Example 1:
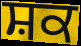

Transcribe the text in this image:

ਸ਼ਕ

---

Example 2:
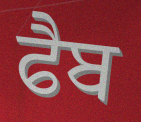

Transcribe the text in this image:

ਫੈਬ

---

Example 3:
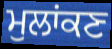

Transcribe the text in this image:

ਮੁਲਾਂਕਣ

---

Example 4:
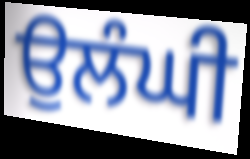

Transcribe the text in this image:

ਉਲੰਘੀ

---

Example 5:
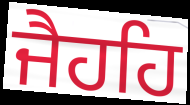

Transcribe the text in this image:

ਜੈਹਹਿ